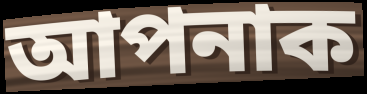
আপনাক